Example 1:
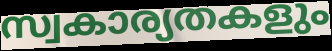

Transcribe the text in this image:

സ്വകാര്യതകളും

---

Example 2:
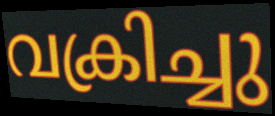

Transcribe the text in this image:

വക്രിച്ചു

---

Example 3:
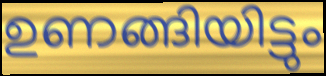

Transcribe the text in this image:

ഉണങ്ങിയിട്ടും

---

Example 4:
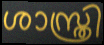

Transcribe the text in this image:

ശാസ്ത്രി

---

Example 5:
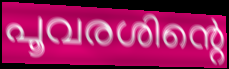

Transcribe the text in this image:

പൂവരശിന്റെ